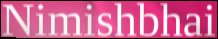
Nimishbhai